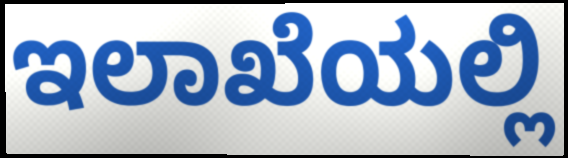
ಇಲಾಖೆಯಲ್ಲಿ